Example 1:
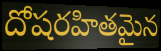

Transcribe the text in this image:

దోషరహితమైన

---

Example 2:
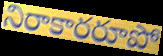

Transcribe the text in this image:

నిరాకారరూపో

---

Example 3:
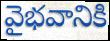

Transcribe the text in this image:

వైభవానికి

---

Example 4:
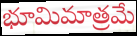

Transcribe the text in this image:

భూమిమాత్రమే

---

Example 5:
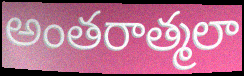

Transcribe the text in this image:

అంతరాత్మలా